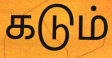
கடும்